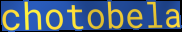
chotobela